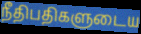
நீதிபதிகளுடைய